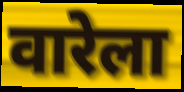
वारेला